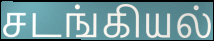
சடங்கியல்